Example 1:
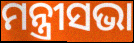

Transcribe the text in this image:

ମନ୍ତ୍ରୀସଭା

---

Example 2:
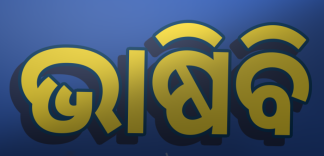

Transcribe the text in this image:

ଭାଷିବି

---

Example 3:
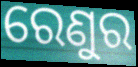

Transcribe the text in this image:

ରେଣୁର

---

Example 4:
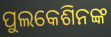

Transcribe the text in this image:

ପୁଲକେଶିନଙ୍କ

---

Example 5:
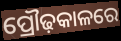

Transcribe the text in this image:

ପ୍ରୌଢ଼କାଳରେ